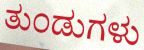
ತುಂಡುಗಳು